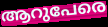
ആറുപേരെ